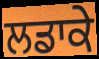
ਲਡਾਕੇ